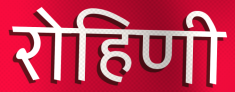
रोहिणी